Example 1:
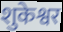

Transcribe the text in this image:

शुकेश्वर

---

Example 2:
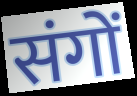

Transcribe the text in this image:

संगों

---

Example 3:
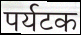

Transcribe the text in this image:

पर्यटक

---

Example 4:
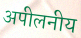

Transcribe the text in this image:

अपीलनीय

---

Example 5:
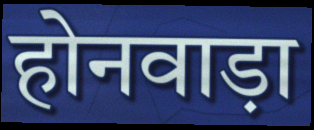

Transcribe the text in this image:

होनवाड़ा